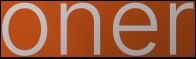
oner